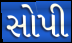
સોપી